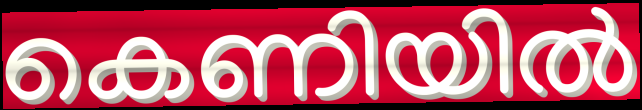
കെണിയിൽ